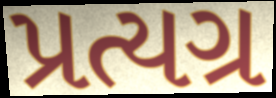
પ્રત્યગ્ર